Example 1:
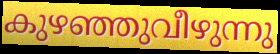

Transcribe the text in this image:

കുഴഞ്ഞുവീഴുന്നു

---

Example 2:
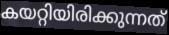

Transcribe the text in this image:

കയറ്റിയിരിക്കുന്നത്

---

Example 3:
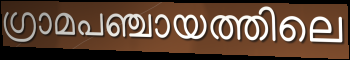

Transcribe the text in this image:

ഗ്രാമപഞ്ചായത്തിലെ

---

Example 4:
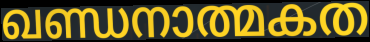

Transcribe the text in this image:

ഖണ്ഡനാത്മകത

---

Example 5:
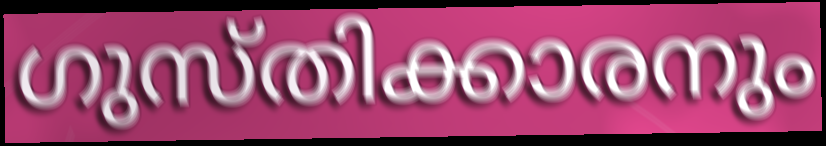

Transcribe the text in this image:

ഗുസ്തിക്കാരനും